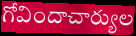
గోవిందాచార్యుల